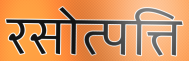
रसोत्पत्ति